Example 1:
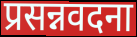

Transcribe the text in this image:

प्रसन्नवदना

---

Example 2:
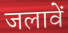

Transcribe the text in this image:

जलावें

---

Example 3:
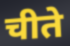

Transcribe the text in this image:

चीते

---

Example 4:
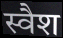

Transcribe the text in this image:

स्वैश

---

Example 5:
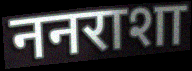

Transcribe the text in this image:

ननराशा